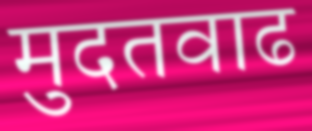
मुदतवाढ